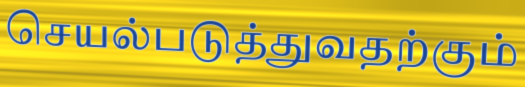
செயல்படுத்துவதற்கும்